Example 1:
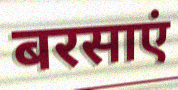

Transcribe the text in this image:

बरसाएं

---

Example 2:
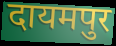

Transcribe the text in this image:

दायमपुर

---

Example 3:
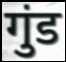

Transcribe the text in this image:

गुंड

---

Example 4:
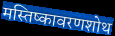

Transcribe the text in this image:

मस्तिष्कावरणशोथ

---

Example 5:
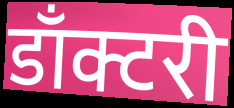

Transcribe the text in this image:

डाँक्टरी